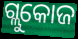
ଗ୍ଲୁକୋଜ